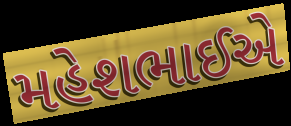
મહેશભાઈએ